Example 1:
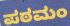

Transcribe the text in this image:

ಪಠಮಂ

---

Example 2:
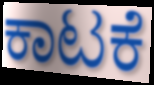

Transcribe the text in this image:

ಕಾಟಕೆ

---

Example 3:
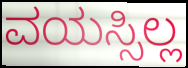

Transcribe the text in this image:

ವಯಸ್ಸಿಲ್ಲ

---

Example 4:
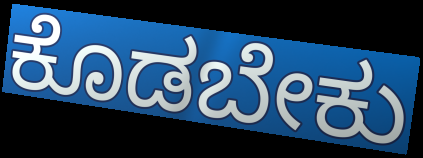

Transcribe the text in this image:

ಕೊಡಬೇಕು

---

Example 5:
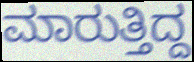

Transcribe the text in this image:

ಮಾರುತ್ತಿದ್ದ